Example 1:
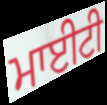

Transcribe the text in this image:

ਮਾਈਟੀ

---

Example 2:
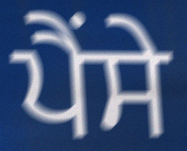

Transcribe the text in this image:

ਪੈਂਸੇ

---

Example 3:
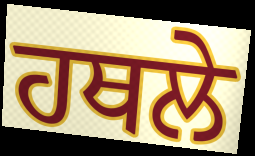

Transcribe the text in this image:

ਹਥਲੇ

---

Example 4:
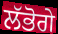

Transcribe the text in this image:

ਲੱਭੋਗੇ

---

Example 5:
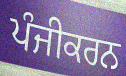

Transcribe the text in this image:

ਪੰਜੀਕਰਨ